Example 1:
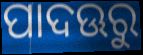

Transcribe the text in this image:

ପାଦଊରୁ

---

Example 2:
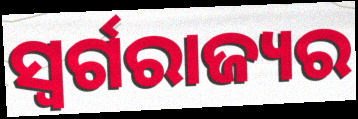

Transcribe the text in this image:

ସ୍ୱର୍ଗରାଜ୍ୟର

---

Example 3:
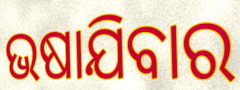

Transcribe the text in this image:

ଭଷାଯିବାର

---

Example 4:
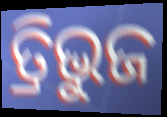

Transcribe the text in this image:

ତ୍ରିଭୁଜ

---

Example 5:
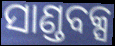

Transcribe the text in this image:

ସାଣ୍ଡବକ୍ସ